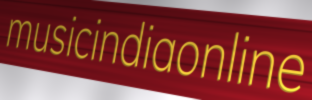
musicindiaonline